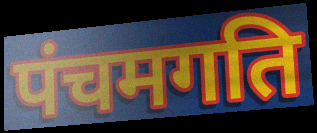
पंचमगति